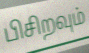
பிசிறவும்